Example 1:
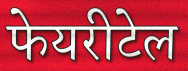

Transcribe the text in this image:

फेयरीटेल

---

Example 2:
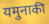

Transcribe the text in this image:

यमुनाकी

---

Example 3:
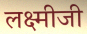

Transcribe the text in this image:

लक्ष्मीजी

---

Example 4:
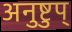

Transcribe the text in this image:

अनुष्टुप्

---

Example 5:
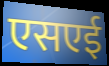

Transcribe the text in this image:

एसएई